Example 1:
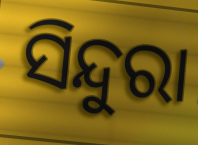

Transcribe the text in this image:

ସିନ୍ଦୁରା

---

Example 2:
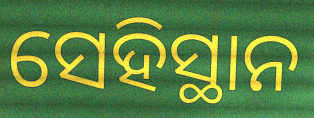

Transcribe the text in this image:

ସେହିସ୍ଥାନ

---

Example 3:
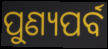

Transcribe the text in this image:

ପୁଣ୍ୟପର୍ବ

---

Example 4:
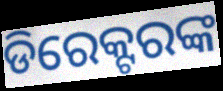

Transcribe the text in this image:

ଡିରେକ୍ଟରଙ୍କ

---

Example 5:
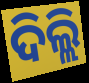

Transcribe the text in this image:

ଦିଲ୍ଲି